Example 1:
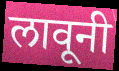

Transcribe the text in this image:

लावूनी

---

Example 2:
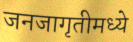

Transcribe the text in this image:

जनजागृतीमध्ये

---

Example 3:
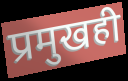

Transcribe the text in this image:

प्रमुखही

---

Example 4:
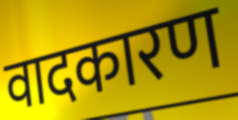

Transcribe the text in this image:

वादकारण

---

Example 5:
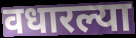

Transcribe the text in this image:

वधारल्या